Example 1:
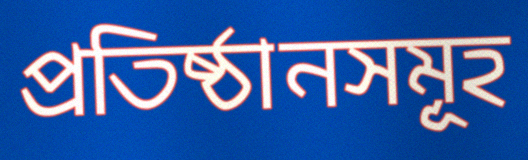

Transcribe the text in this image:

প্ৰতিষ্ঠানসমূহ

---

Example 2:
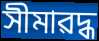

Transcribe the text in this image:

সীমাৱদ্ধ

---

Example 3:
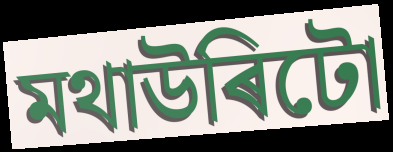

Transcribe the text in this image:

মথাউৰিটো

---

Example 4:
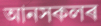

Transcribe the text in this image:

আনসকলৰ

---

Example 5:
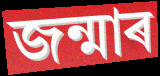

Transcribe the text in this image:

জন্মাৰ